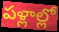
పళ్లాల్లో